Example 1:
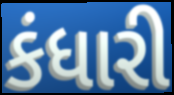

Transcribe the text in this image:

કંધારી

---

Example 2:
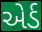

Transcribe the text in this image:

એર્ડ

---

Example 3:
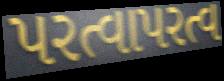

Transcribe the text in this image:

પરત્વાપરત્વ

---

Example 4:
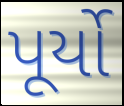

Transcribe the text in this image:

પૂર્યો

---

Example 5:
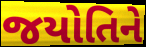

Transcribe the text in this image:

જયોતિને